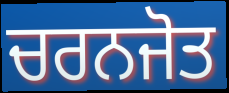
ਚਰਨਜੋਤ